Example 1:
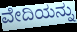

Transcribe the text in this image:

ವೇದಿಯನ್ನು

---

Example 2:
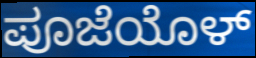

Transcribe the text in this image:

ಪೂಜೆಯೊಳ್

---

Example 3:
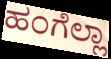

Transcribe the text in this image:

ಹಂಗೆಲ್ಲಾ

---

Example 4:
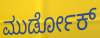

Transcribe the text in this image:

ಮುರ್ಡೋಕ್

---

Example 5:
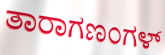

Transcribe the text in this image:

ತಾರಾಗಣಂಗಳ್